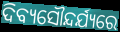
ଦିବ୍ୟସୌନ୍ଦର୍ଯ୍ୟରେ